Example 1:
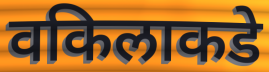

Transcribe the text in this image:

वकिलाकडे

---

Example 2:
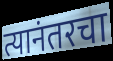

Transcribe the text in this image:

त्यानंतरचा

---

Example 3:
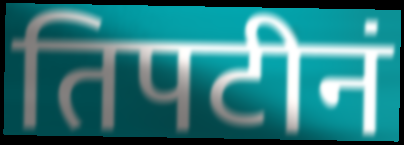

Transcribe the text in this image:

तिपटीनं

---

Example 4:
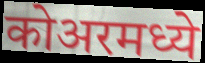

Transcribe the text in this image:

कोअरमध्ये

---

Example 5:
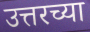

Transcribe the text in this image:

उत्तरच्या